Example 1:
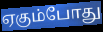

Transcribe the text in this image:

ஏகும்போது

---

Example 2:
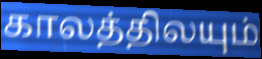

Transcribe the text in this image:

காலத்திலயும்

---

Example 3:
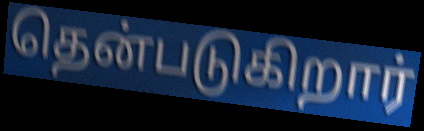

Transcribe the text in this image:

தென்படுகிறார்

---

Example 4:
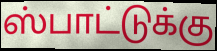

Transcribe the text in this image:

ஸ்பாட்டுக்கு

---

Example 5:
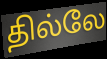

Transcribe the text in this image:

தில்லே